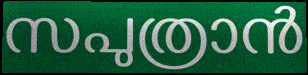
സപുത്രാൻ